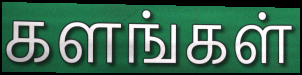
களங்கள்